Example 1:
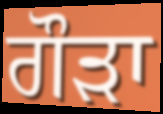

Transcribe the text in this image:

ਗੌੜਾ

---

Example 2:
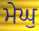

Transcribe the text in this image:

ਮੇਘੁ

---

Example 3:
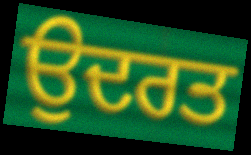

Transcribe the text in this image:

ਉਦਰਤ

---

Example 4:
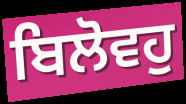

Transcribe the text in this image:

ਬਿਲੋਵਹੁ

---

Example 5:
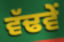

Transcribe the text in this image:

ਵੱਢਵੇਂ